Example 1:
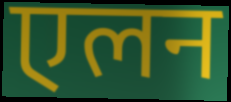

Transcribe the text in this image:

एलन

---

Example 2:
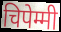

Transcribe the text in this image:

चिपेम्मी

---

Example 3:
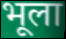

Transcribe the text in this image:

भूला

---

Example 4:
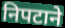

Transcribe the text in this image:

निपटाने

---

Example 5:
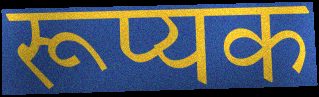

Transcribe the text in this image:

रूप्यक